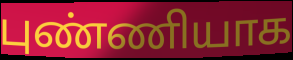
புண்ணியாக